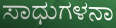
ಸಾಧುಗಳನಾ